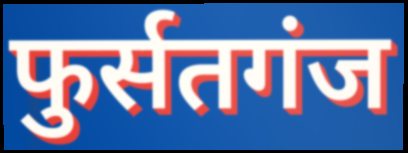
फुर्सतगंज